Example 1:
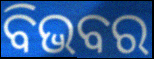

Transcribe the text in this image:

ବିଭବର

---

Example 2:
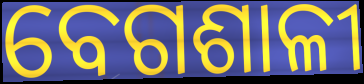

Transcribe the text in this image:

ବେଗଶାଳୀ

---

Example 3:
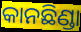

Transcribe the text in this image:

କାନଛିଣ୍ଡା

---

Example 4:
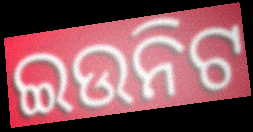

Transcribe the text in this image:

ଇଉନିଟ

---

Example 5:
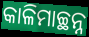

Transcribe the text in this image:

କାଳିମାଚ୍ଛନ୍ନ